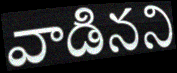
వాడినని